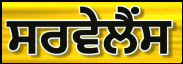
ਸਰਵੇਲੈਂਸ